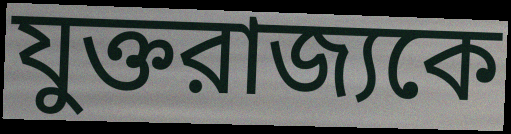
যুক্তরাজ্যকে